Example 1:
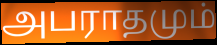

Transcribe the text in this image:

அபராதமும்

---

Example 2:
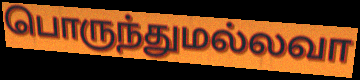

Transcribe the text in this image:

பொருந்துமல்லவா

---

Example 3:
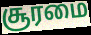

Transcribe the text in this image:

சூரமை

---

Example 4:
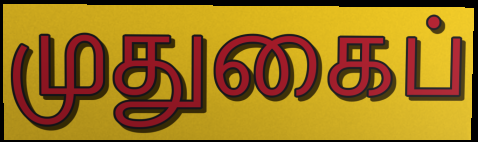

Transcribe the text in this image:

முதுகைப்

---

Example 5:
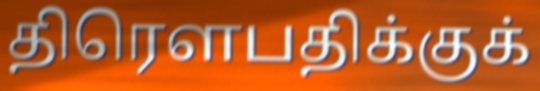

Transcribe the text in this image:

திரௌபதிக்குக்